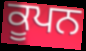
ਕੂਪਨ